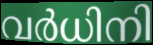
വർധിനി